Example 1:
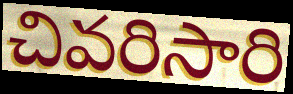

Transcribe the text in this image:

చివరిసారి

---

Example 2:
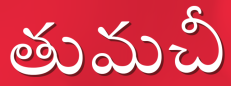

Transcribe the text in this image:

తుమచీ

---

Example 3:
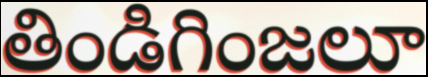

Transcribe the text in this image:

తిండిగింజలూ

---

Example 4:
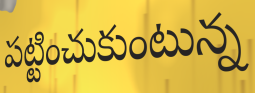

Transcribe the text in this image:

పట్టించుకుంటున్న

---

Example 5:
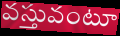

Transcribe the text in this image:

వస్తువంటూ